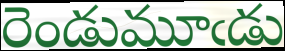
రెండుమూఁడు